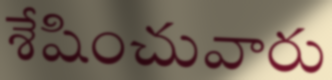
శేషించువారు